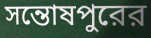
সন্তোষপুরের